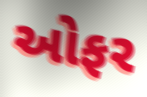
ઓફર